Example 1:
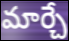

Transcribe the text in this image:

మార్చే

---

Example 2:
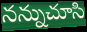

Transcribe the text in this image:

నన్నుచూసి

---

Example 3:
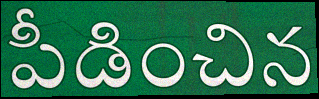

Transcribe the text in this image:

పీడించిన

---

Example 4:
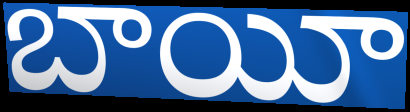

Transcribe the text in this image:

బాయీ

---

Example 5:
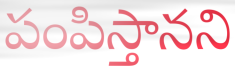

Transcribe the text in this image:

పంపిస్తానని